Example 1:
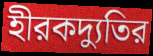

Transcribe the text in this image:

হীরকদ্যুতির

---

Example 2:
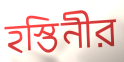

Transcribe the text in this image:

হস্তিনীর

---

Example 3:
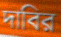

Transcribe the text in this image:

দাবির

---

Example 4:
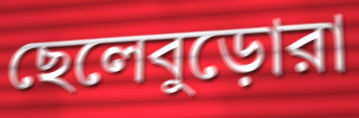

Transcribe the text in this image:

ছেলেবুড়োরা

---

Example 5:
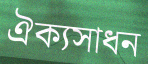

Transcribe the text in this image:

ঐক্যসাধন